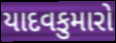
યાદવકુમારો